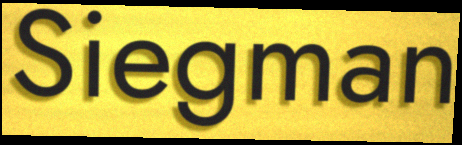
Siegman